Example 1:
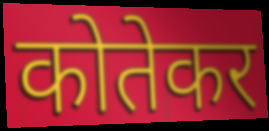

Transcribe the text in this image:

कोतेकर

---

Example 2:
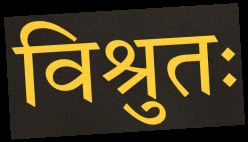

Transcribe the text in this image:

विश्रुतः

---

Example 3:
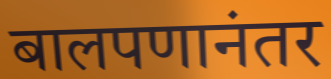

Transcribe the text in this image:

बालपणानंतर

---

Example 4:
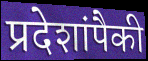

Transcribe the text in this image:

प्रदेशांपैकी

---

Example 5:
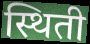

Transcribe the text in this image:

स्थिती